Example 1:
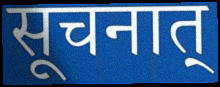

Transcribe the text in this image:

सूचनात्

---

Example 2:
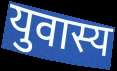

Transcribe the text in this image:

युवास्य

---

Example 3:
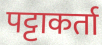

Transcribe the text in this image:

पट्टाकर्ता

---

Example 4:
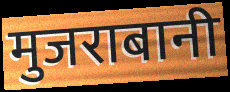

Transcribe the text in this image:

मुजराबानी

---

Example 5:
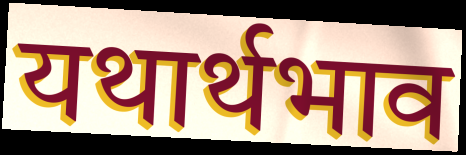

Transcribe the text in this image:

यथार्थभाव